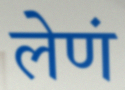
लेणं